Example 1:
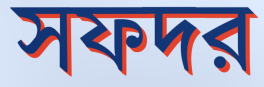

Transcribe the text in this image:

সফদর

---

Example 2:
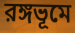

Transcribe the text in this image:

রঙ্গভূমে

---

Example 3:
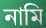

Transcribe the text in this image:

নামি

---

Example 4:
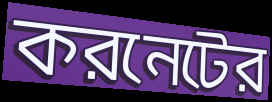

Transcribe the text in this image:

করনেটের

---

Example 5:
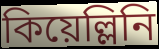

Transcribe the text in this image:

কিয়েল্লিনি